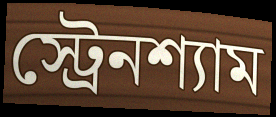
স্ট্রেনশ্যাম